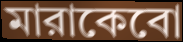
মারাকেবো